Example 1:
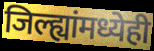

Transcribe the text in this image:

जिल्ह्यांमध्येही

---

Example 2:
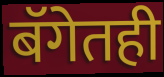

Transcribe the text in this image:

बॅगेतही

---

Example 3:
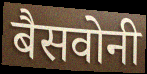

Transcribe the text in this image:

बैसवोनी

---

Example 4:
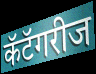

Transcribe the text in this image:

कॅटॅगरीज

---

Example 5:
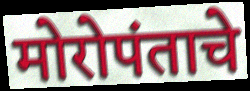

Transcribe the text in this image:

मोरोपंताचे